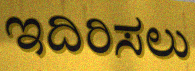
ಇದಿರಿಸಲು